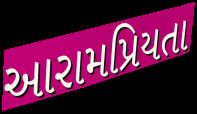
આરામપ્રિયતા